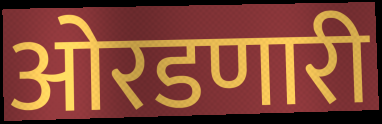
ओरडणारी